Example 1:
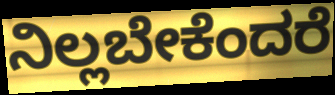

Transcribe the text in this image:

ನಿಲ್ಲಬೇಕೆಂದರೆ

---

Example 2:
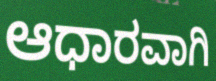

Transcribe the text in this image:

ಆಧಾರವಾಗಿ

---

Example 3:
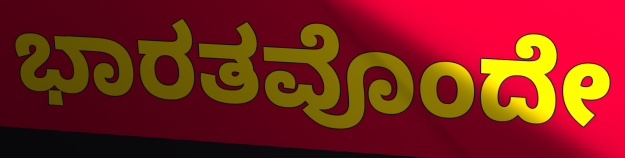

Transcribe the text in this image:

ಭಾರತವೊಂದೇ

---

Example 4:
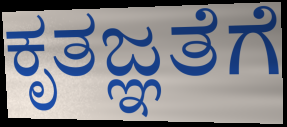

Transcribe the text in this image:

ಕೃತಜ್ಞತೆಗೆ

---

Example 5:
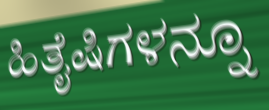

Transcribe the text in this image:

ಹಿತೈಷಿಗಳನ್ನೂ